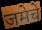
जमेचे